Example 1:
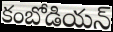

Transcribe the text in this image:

కంబోడియన్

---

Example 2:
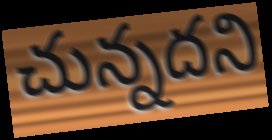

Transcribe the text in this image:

చున్నదని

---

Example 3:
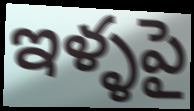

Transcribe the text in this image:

ఇళ్ళపై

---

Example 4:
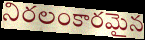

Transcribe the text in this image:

నిరలంకారమైన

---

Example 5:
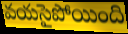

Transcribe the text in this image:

వయసైపోయింది